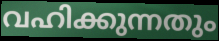
വഹിക്കുന്നതും